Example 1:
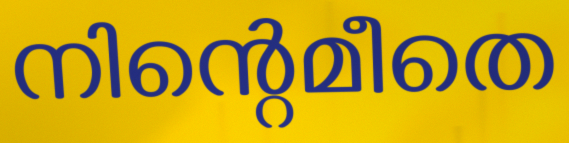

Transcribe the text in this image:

നിന്റെമീതെ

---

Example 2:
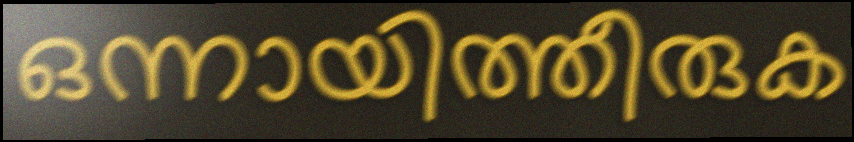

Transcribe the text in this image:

ഒന്നായിത്തീരുക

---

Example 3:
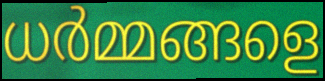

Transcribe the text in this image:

ധർമ്മങ്ങളെ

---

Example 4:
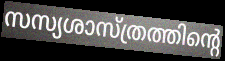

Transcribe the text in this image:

സസ്യശാസ്ത്രത്തിന്റെ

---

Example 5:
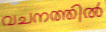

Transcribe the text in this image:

വചനത്തിൽ